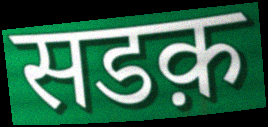
सडक़